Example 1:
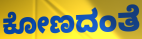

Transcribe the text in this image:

ಕೋಣದಂತೆ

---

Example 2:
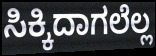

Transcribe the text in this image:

ಸಿಕ್ಕಿದಾಗಲೆಲ್ಲ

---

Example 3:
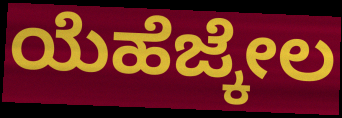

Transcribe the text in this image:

ಯೆಹೆಜ್ಕೇಲ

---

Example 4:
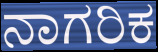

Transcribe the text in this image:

ನಾಗರಿಕ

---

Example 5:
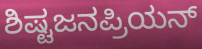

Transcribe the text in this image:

ಶಿಷ್ಟಜನಪ್ರಿಯನ್